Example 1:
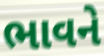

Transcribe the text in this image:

ભાવને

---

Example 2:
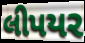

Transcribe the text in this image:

લીપયર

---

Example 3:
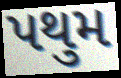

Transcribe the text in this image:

પથુમ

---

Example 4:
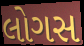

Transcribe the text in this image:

લોગસ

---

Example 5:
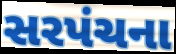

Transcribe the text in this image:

સરપંચના